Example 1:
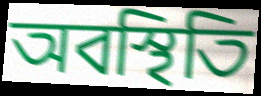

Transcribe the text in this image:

অবস্থিতি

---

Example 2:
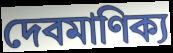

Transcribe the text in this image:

দেবমাণিক্য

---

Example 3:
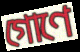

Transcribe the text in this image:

গোণে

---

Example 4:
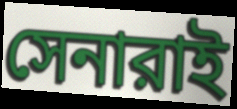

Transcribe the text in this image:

সেনারাই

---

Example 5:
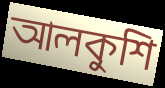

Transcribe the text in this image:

আলকুশি